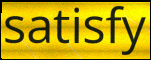
satisfy